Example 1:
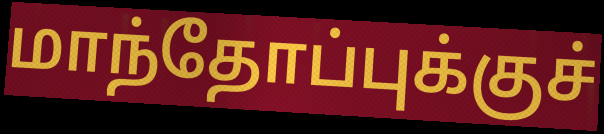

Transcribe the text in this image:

மாந்தோப்புக்குச்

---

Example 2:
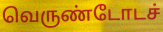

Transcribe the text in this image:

வெருண்டோடச்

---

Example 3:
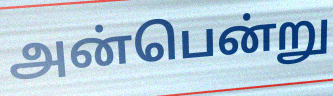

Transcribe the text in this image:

அன்பென்று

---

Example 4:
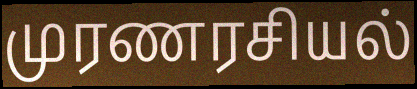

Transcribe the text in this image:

முரணரசியல்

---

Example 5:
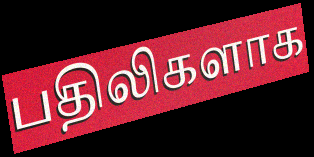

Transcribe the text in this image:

பதிலிகளாக